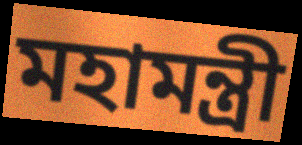
মহামন্ত্রী